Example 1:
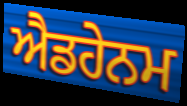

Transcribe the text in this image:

ਐਡਹੇਨਮ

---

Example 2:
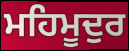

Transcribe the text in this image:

ਮਹਿਮੂਦੁਰ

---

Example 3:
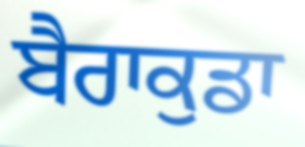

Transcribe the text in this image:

ਬੈਰਾਕੁਡਾ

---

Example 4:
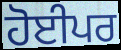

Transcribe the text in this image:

ਹੋਈਪਰ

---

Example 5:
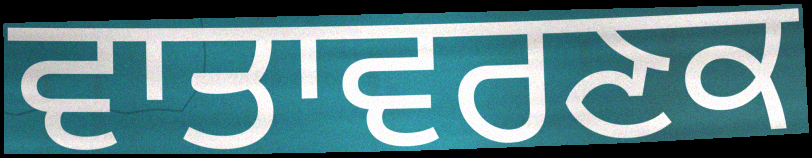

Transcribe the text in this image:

ਵਾਤਾਵਰਣਕ